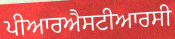
ਪੀਆਰਐਸਟੀਆਰਸੀ